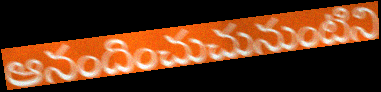
ఆనందించుచునుంటిని